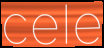
cele